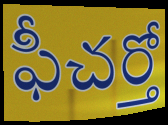
ఫీచర్తో